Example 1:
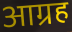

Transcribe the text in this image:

आग्रह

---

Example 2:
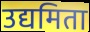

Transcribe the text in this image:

उद्यमिता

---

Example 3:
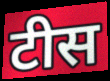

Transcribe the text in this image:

टीस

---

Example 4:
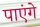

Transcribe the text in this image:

पाएंगे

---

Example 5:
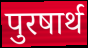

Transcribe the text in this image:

पुरषार्थ